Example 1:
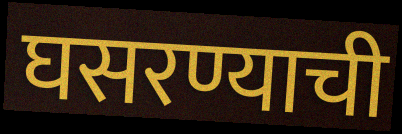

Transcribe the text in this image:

घसरण्याची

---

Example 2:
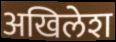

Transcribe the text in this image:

अखिलेश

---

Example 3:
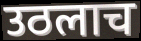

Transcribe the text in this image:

उठलाच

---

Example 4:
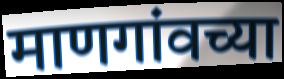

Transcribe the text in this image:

माणगांवच्या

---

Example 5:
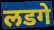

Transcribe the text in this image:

लडगे